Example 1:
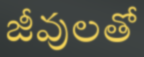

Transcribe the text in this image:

జీవులతో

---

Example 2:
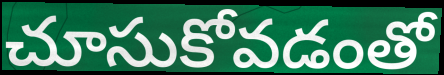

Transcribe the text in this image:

చూసుకోవడంతో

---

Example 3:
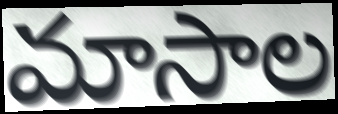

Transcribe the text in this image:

మాసాల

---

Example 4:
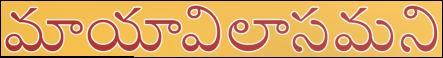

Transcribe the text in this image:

మాయావిలాసమని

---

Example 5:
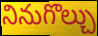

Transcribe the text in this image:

నినుగొల్చు